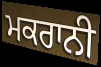
ਮਕਰਾਨੀ